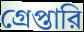
গ্রেপ্তারি